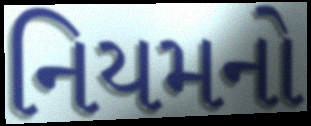
નિયમનો